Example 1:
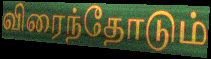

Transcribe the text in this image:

விரைந்தோடும்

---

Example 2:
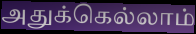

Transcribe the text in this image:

அதுக்கெல்லாம்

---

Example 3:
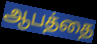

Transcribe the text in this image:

ஆபத்தை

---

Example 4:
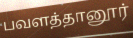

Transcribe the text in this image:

பவளத்தானூர்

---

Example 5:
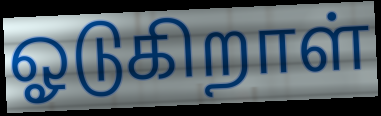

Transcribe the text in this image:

ஓடுகிறாள்